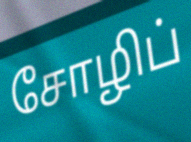
சோழிப்